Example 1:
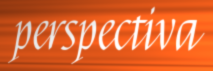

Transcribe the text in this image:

perspectiva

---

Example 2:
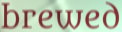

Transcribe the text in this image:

brewed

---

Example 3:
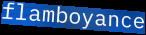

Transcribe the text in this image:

flamboyance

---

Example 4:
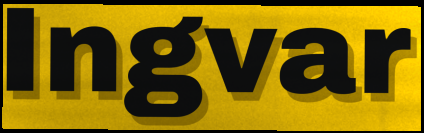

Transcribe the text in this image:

Ingvar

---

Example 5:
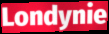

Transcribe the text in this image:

Londynie